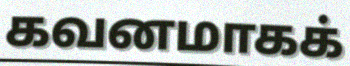
கவனமாகக்